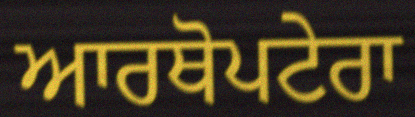
ਆਰਥੋਪਟੇਰਾ